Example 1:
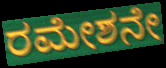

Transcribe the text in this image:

ರಮೇಶನೇ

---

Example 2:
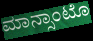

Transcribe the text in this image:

ಮಾನ್ಸಾಂಟೊ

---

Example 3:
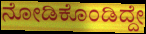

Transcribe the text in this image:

ನೋಡಿಕೊಂಡಿದ್ದೇ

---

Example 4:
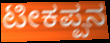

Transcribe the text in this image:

ಟೀಕಪ್ಪನ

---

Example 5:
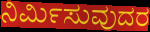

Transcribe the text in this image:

ನಿರ್ಮಿಸುವುದರ